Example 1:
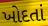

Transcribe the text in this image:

ખોદતાં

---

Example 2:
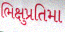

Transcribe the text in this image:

ભિક્ષુપ્રતિમા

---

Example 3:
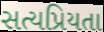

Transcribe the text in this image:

સત્યપ્રિયતા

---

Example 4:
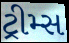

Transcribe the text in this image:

ટ્રીમ્સ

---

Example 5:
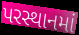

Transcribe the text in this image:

પરસ્થાનમાં